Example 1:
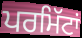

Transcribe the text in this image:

ਪਰਮਿੱਟਾਂ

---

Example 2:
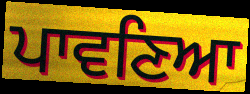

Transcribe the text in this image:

ਪਾਵਣਿਆ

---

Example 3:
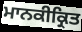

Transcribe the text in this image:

ਮਾਨਕੀਕ੍ਰਿਤ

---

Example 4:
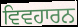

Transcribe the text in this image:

ਵਿਵਹਾਰਨ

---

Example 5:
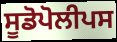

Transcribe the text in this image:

ਸੂਡੋਪੋਲੀਪਸ